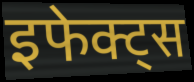
इफेक्ट्स